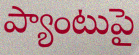
ప్యాంటుపై